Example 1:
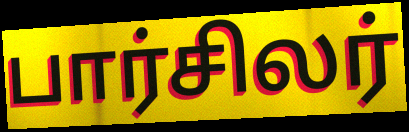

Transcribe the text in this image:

பார்சிலர்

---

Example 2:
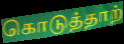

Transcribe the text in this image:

கொடுத்தாற்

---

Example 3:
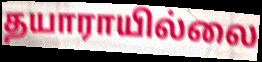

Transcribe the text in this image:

தயாராயில்லை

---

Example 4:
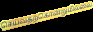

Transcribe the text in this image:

செய்வதற்கொன்றுமில்லை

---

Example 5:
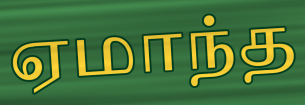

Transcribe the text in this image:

ஏமாந்த